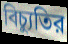
বিচ্যুতির